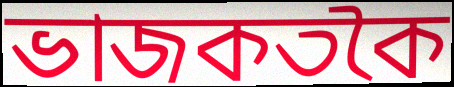
ভাজকতকৈ